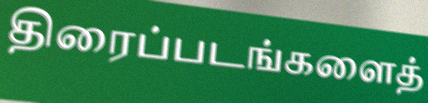
திரைப்படங்களைத்